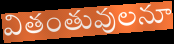
వితంతువులనూ